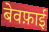
बेवफ़ाई